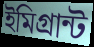
ইমিগ্রান্ট